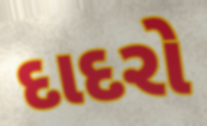
દાદરો